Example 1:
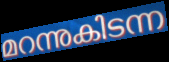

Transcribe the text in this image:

മറന്നുകിടന്ന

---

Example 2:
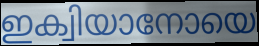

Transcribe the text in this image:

ഇക്വിയാനോയെ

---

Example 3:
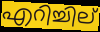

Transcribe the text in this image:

എറിച്ചില്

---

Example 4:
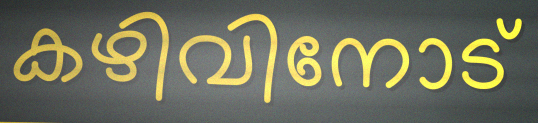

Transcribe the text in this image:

കഴിവിനോട്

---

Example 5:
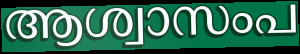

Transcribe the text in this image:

ആശ്വാസംപ